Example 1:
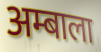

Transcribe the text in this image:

अम्‍बाला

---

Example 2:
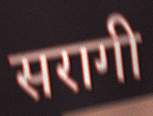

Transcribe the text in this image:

सरागी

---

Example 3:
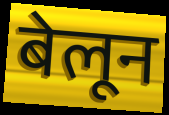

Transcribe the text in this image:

बेलून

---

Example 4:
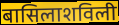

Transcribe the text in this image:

बासिलाशविली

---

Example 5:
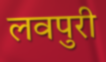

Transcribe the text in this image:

लवपुरी